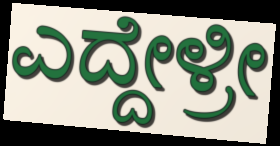
ಎದ್ದೇಳ್ರೀ